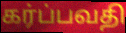
கர்ப்பவதி